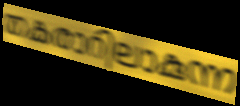
തകരാറിലാകുന്ന